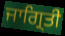
ਜਾਗ੍ਰਿਤੀ